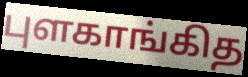
புளகாங்கித